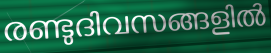
രണ്ടുദിവസങ്ങളിൽ